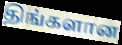
திங்களான